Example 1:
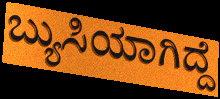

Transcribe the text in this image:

ಬ್ಯುಸಿಯಾಗಿದ್ದೆ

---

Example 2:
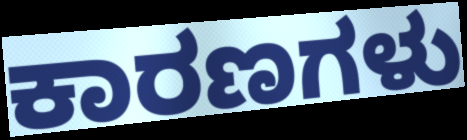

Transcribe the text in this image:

ಕಾರಣಗಳು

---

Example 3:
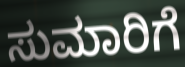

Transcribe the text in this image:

ಸುಮಾರಿಗೆ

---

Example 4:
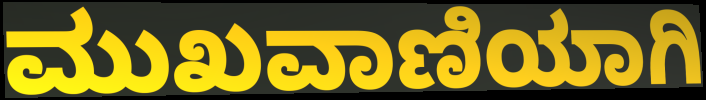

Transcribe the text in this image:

ಮುಖವಾಣಿಯಾಗಿ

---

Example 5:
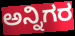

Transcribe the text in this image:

ಅನ್ನಿಗರ